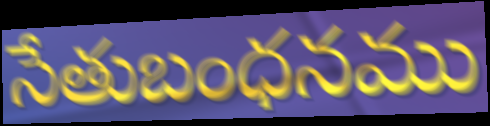
సేతుబంధనము